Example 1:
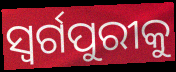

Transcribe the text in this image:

ସ୍ୱର୍ଗପୁରୀକୁ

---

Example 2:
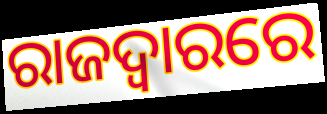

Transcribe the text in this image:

ରାଜଦ୍ୱାରରେ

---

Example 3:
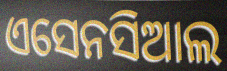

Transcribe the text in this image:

ଏସେନସିଆଲ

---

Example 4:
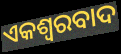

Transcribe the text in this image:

ଏକଶ୍ୱରବାଦ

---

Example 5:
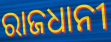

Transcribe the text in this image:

ରାଜଧାନୀ